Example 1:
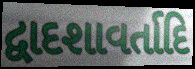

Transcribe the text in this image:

દ્વાદશાવર્તાદિ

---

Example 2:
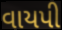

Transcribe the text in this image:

વાયપી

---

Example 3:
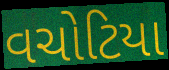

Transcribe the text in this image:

વચોટિયા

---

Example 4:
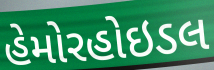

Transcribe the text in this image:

હેમોરહોઇડલ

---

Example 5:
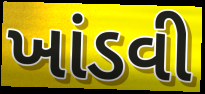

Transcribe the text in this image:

ખાંડવી